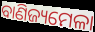
ବାଣିଜ୍ୟମେଳା